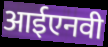
आईएनवी